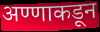
अण्णाकडून